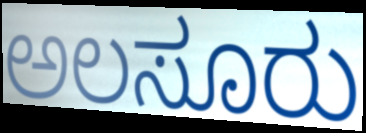
ಅಲಸೂರು